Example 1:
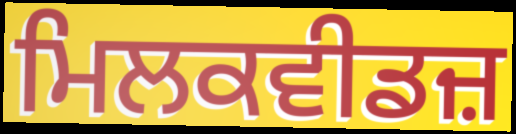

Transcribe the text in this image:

ਮਿਲਕਵੀਡਜ਼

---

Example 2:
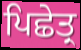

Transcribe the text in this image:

ਪਿਛੇਤ੍ਰ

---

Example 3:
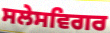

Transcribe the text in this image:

ਸਲੇਸਵਿਗਰ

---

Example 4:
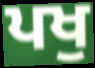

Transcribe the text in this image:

ਪਖੁ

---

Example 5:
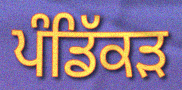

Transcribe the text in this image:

ਪੰਡਿੱਕੜ